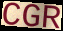
CGR